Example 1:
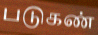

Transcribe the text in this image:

படுகண்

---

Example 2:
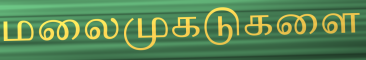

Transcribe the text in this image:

மலைமுகடுகளை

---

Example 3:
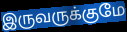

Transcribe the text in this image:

இருவருக்குமே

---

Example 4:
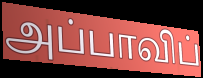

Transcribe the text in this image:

அப்பாவிப்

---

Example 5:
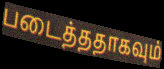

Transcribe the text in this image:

படைத்ததாகவும்